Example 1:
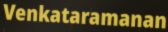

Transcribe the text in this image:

Venkataramanan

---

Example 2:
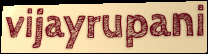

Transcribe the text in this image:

vijayrupani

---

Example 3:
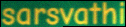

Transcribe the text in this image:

sarsvathi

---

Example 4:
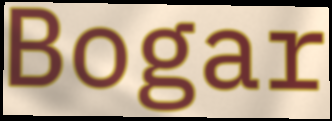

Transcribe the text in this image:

Bogar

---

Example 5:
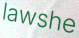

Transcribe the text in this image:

lawshe